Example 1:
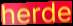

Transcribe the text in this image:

herde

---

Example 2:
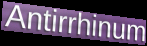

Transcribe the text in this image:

Antirrhinum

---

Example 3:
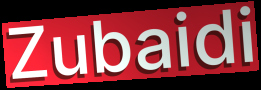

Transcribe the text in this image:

Zubaidi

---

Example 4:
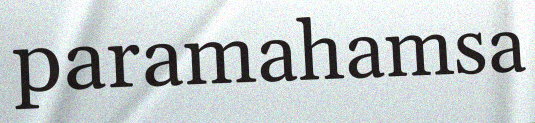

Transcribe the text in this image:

paramahamsa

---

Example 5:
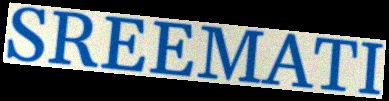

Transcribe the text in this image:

SREEMATI